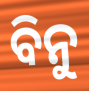
ବିନୁ